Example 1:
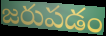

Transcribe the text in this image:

జరుపడం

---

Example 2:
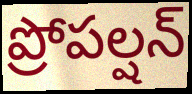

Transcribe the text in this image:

ప్రోపల్షన్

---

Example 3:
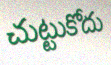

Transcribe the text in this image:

చుట్టుకోదు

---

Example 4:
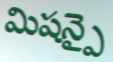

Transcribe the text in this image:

మిషన్పై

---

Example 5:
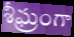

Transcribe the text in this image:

శీఘ్రంగా